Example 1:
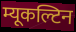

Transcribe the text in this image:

म्यूकल्टिन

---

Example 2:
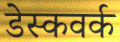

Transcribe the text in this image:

डेस्कवर्क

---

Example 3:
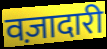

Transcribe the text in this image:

वज़ादारी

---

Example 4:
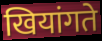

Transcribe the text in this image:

खियांगते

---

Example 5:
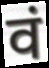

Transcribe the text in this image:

वं